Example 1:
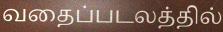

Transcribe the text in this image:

வதைப்படலத்தில்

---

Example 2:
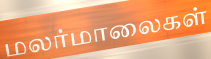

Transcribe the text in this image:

மலர்மாலைகள்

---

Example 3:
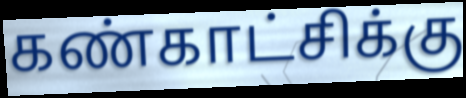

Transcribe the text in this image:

கண்காட்சிக்கு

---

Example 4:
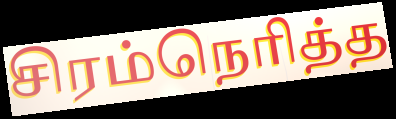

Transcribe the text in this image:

சிரம்நெரித்த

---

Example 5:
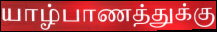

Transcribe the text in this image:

யாழ்பாணத்துக்கு